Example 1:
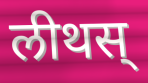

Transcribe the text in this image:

लीथस्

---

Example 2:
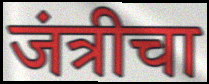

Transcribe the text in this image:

जंत्रीचा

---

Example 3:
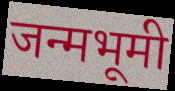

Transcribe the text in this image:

जन्मभूमी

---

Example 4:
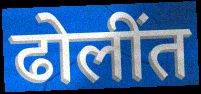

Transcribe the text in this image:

ढोलींत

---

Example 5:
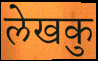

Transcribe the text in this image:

लेखकु